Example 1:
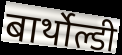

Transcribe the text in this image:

बार्थोल्डी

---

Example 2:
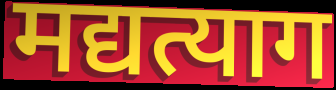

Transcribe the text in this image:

मद्यत्याग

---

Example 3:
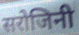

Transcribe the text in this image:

सरोजिनी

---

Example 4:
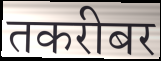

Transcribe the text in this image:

तकरीबर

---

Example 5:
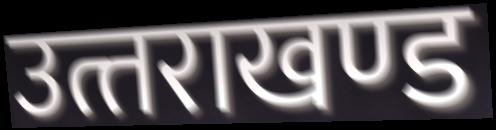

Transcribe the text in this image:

उत्‍तराखण्‍ड